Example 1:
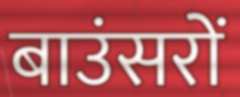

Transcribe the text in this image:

बाउंसरों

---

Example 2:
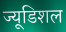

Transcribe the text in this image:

ज्यूडिशल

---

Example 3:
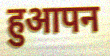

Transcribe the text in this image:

हुआपन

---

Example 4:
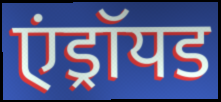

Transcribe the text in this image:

एंड्रॉयड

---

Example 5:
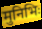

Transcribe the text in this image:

मुनिभिः